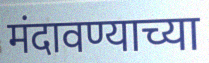
मंदावण्याच्या